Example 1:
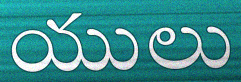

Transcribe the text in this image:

యులు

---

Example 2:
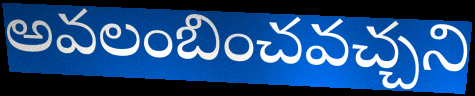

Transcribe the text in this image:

అవలంబించవచ్చని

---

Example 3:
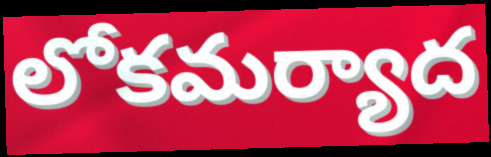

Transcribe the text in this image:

లోకమర్యాద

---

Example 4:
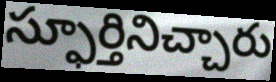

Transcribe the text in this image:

స్ఫూర్తినిచ్చారు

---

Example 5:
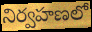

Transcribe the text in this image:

నిర్వహణలో